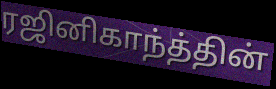
ரஜினிகாந்த்தின்